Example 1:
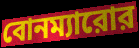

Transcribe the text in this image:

বোনম্যারোর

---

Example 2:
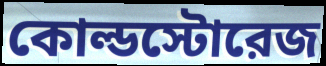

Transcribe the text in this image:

কোল্ডস্টোরেজ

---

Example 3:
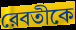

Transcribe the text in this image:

রেবতীকে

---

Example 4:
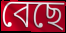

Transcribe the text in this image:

বেছে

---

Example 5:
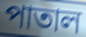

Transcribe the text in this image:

পাতাল